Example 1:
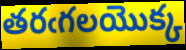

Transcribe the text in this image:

తరఁగలయొక్క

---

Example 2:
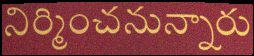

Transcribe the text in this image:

నిర్మించనున్నారు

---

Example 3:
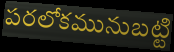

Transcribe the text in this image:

పరలోకమునుబట్టి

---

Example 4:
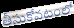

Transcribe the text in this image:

తీసుకోవటంలో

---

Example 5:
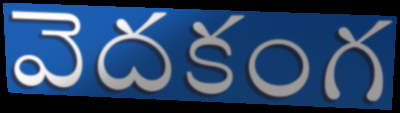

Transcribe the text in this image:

వెదకంగ